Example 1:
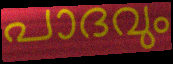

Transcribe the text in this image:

പാദവും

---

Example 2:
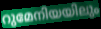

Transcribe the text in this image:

റുമേനിയയിലും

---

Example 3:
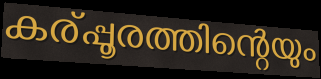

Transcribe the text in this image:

കര്പ്പൂരത്തിന്റെയും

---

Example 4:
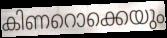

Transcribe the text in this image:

കിണറൊക്കെയും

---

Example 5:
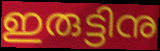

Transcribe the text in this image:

ഇരുട്ടിനു